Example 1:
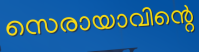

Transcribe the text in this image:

സെരായാവിന്റെ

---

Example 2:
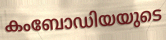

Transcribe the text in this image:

കംബോഡിയയുടെ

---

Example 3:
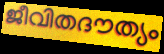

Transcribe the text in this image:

ജീവിതദൗത്യം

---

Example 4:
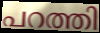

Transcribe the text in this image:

പറത്തി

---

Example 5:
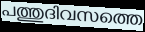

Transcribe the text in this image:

പത്തുദിവസത്തെ